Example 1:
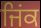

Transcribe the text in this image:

ਜਿਂਕ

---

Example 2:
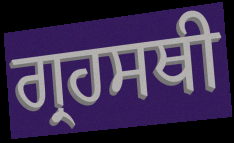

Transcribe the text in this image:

ਗ੍ਰਹਸਥੀ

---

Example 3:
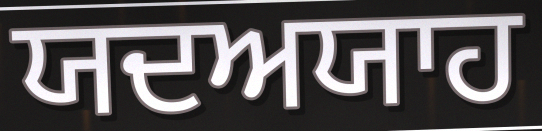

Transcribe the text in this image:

ਯਦਅਯਾਹ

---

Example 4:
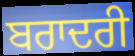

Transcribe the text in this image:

ਬਰਾਦਰੀ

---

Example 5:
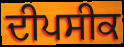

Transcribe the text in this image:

ਦੀਪਸੀਕ